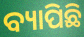
ବ୍ୟାପିଛି